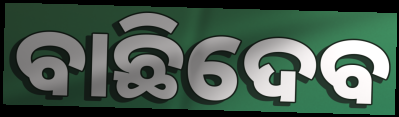
ବାଛିଦେବ